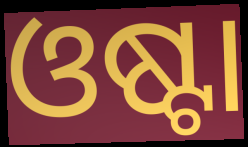
ଓଷ୍ଟା